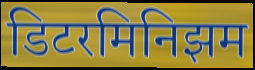
डिटरमिनिझम